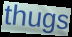
thugs